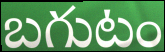
బగుటం